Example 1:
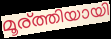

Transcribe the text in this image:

മൂര്ത്തിയായി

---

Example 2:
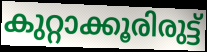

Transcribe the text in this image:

കുറ്റാക്കൂരിരുട്ട്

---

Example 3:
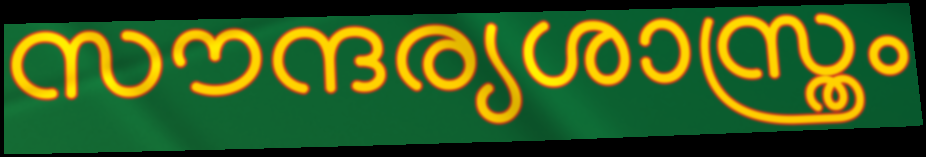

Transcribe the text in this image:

സൗന്ദര്യശാസ്ത്രം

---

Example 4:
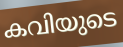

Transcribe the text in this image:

കവിയുടെ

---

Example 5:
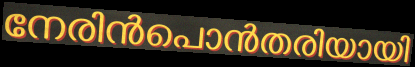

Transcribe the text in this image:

നേരിൻപൊൻതരിയായി